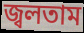
জ্বলতাম